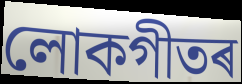
লোকগীতৰ